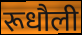
रूधौली